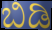
ಬಿಡಿ